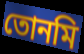
তোনমি